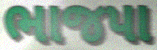
ભાજપા